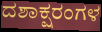
ದಶಾಕ್ಷರಂಗಳ